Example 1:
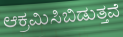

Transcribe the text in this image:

ಆಕ್ರಮಿಸಿಬಿಡುತ್ತವೆ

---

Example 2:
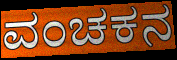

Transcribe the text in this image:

ವಂಚಕನ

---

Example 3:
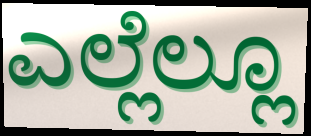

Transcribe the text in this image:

ಎಲ್ಲೆಲ್ಲೂ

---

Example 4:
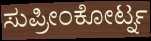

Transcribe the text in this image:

ಸುಪ್ರೀಂಕೋರ್ಟ್ನ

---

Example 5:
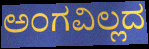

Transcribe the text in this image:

ಅಂಗವಿಲ್ಲದ